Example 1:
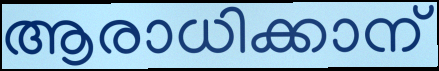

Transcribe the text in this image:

ആരാധിക്കാന്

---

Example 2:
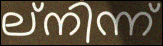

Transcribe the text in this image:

ല്നിന്ന്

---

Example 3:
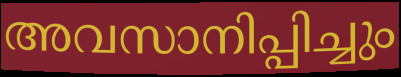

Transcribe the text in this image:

അവസാനിപ്പിച്ചും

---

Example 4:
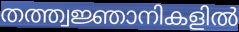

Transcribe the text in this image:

തത്ത്വജ്ഞാനികളിൽ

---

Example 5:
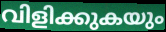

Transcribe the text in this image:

വിളിക്കുകയും